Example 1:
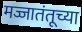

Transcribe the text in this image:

मज्जातंतूच्या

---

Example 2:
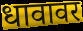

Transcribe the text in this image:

धावावर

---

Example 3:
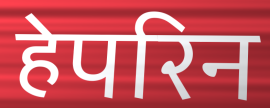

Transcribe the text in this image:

हेपरिन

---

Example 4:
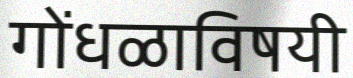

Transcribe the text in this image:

गोंधळाविषयी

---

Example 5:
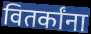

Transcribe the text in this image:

वितर्कांना